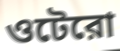
ওটেরো